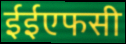
ईईएफसी